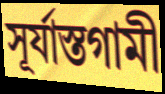
সূর্যাস্তগামী